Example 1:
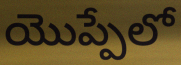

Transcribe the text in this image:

యొప్పేలో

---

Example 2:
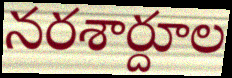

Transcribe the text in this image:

నరశార్దూల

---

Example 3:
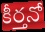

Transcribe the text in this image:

కీర్తనో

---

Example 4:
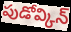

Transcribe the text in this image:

పుడోవ్కిన్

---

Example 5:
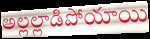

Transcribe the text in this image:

అల్లల్లాడిపోయాయి